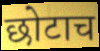
छोटाच